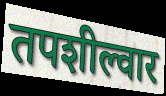
तपशील्वार